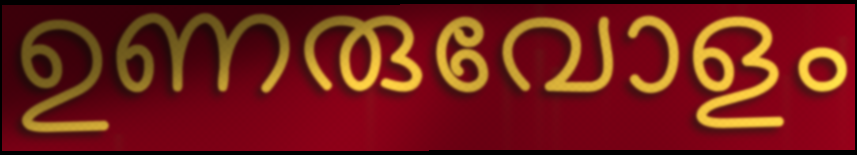
ഉണരുവോളം